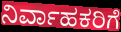
ನಿರ್ವಾಹಕರಿಗೆ